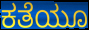
ಕತೆಯೂ